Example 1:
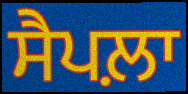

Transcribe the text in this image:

ਸੈਪਲ਼ਾ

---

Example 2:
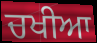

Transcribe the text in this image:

ਚਖੀਆ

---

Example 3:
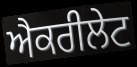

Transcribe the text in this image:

ਐਕਰੀਲੇਟ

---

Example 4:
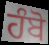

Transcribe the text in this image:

ਹੰਬੋ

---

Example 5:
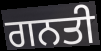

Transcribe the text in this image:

ਗਨਤੀ